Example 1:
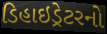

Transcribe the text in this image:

ડિહાઇડ્રેટરનો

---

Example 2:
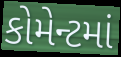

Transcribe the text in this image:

કોમેન્ટમાં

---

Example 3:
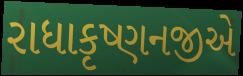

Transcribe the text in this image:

રાધાકૃષ્ણનજીએ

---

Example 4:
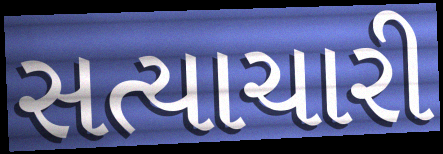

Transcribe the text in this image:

સત્યાચારી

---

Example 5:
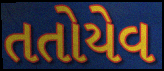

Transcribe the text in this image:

તતોયેવ